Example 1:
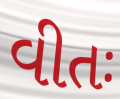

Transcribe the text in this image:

વીતઃ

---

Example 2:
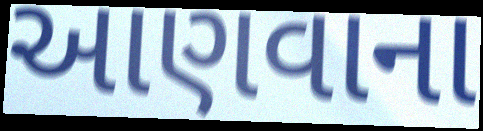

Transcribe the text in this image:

આણવાના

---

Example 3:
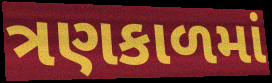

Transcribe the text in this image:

ત્રણકાળમાં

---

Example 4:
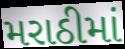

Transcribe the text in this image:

મરાઠીમાં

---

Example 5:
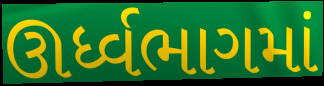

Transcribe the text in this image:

ઊર્ધ્વભાગમાં